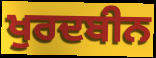
ਖੁਰਦਬੀਨ